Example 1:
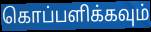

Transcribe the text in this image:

கொப்பளிக்கவும்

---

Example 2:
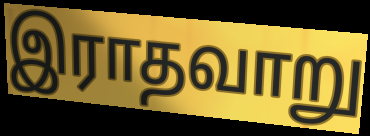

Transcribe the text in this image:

இராதவாறு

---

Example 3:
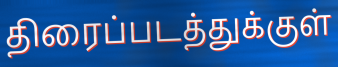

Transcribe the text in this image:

திரைப்படத்துக்குள்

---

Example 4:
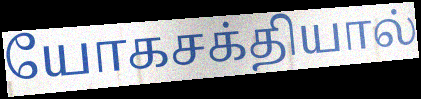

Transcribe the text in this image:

யோகசக்தியால்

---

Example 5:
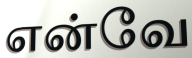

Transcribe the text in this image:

என்வே